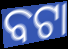
ବଟା